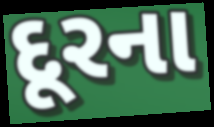
દૂરના